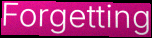
Forgetting